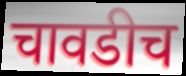
चावडीच